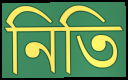
নিতি